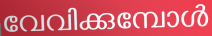
വേവിക്കുമ്പോൾ